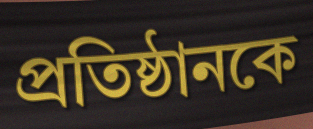
প্রতিষ্ঠানকে